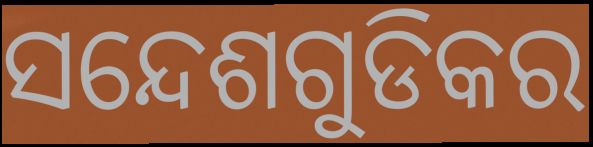
ସନ୍ଦେଶଗୁଡିକର